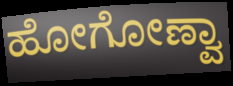
ಹೋಗೋಣ್ವಾ